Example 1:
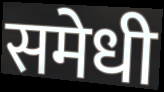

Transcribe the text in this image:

समेधी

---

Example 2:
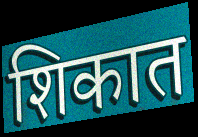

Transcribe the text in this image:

शिकात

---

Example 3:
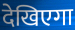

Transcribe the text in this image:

देखिएगा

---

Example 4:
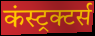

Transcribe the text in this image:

कंस्ट्रक्टर्स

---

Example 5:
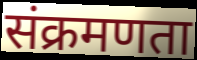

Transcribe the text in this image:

संक्रमणता